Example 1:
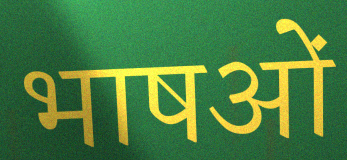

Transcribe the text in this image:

भाषओं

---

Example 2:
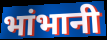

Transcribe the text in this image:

भांभानी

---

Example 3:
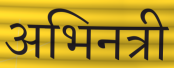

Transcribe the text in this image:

अभिनत्री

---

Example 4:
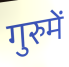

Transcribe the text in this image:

गुरुमें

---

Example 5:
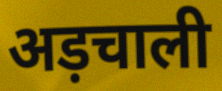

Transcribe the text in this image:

अड़चाली